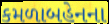
કમળાબહેનના